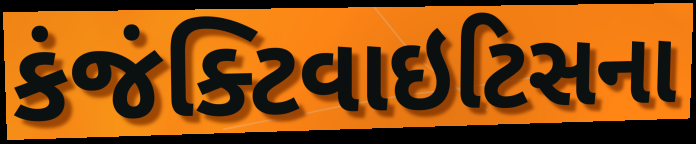
કંજંક્ટિવાઇટિસના